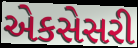
એકસેસરી